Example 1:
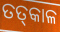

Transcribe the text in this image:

ତତ୍‌କାଳ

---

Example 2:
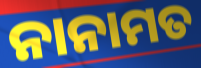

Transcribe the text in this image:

ନାନାମତ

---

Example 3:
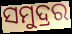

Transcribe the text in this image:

ସମୁଦ୍ରର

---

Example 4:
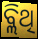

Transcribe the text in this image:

ବ୍ଲିଥି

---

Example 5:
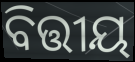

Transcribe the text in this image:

ବିତ୍ତୀୟ